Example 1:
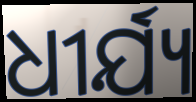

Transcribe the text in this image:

ଧୀର୍ଯ୍ୟ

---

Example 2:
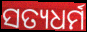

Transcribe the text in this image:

ସତ୍ୟଧର୍ମ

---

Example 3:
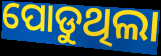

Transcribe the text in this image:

ପୋଡୁଥିଲା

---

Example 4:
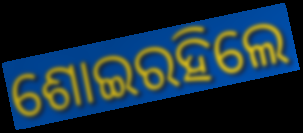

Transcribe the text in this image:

ଶୋଇରହିଲେ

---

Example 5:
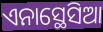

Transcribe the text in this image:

ଏନାସ୍ଥେସିଆ